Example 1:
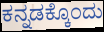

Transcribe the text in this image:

ಕನ್ನಡಕ್ಕೊಂದು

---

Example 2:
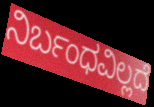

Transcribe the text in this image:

ನಿರ್ಬಂಧವಿಲ್ಲದೆ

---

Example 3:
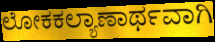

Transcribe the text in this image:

ಲೋಕಕಲ್ಯಾಣಾರ್ಥವಾಗಿ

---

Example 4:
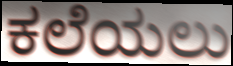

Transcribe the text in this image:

ಕಲೆಯಲು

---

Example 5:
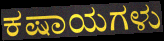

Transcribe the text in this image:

ಕಷಾಯಗಳು